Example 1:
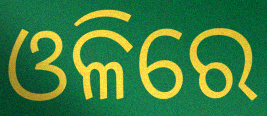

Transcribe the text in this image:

ଓଳିରେ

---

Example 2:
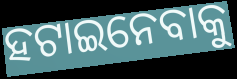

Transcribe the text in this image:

ହଟାଇନେବାକୁ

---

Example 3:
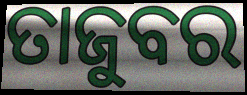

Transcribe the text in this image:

ତାଜୁବର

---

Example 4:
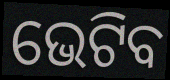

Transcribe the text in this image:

ଭେଟିବ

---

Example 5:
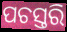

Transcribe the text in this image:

ପଚସ୍ତରି